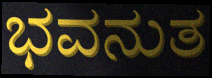
ಭವನುತ